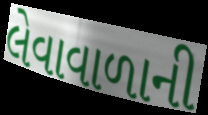
લેવાવાળાની